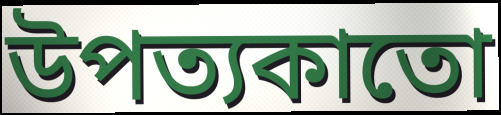
উপত্যকাতো